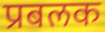
प्रबलक